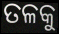
ତଳକୁ